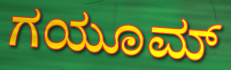
ಗಯೂಮ್